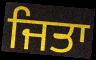
ਜਿਤਾ